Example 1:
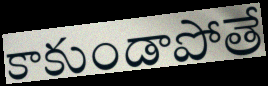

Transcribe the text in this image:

కాకుండాపోతే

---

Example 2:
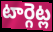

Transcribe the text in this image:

టార్గెట్ల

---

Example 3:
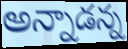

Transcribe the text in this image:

అన్నాడన్న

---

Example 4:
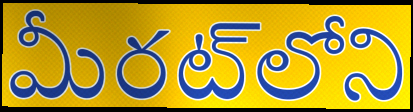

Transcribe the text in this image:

మీరట్‌లోని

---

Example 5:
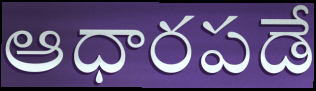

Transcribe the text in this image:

ఆధారపడే